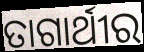
ତାଗାର୍ଥୀର